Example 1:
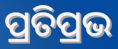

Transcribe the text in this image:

ପ୍ରତିପ୍ରଭ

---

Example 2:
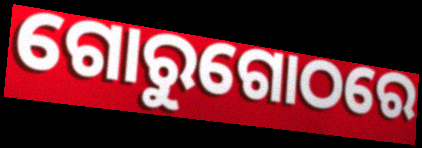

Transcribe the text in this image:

ଗୋରୁଗୋଠରେ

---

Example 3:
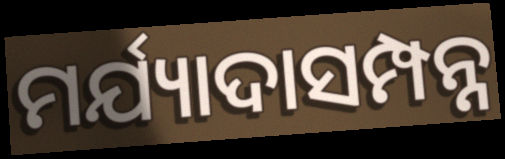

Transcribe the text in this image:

ମର୍ଯ୍ୟାଦାସମ୍ପନ୍ନ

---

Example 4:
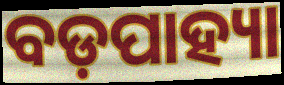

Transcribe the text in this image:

ବଡ଼ପାହ୍ୟା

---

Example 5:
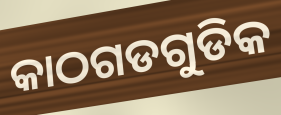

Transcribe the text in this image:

କାଠଗଡଗୁଡିକ